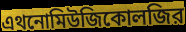
এথনোমিউজিকোলজির